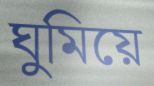
ঘুমিয়ে